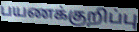
பயணக்குறிப்பு